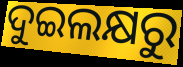
ଦୁଇଲକ୍ଷରୁ